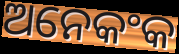
ଅନେକଂକ